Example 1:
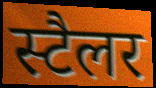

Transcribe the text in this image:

स्टैलर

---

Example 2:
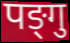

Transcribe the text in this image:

पङ्गु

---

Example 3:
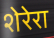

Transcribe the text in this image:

शेरेरा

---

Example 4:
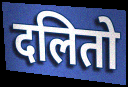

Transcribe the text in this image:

दलितो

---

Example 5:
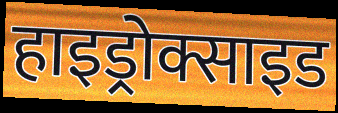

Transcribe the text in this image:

हाइड्रोक्साइड